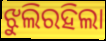
ଝୁଲିରହିଲା